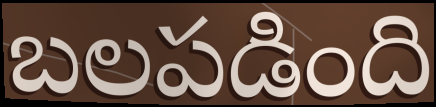
బలపడింది